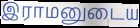
இராமனுடைய